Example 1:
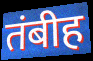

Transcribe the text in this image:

तंबीह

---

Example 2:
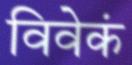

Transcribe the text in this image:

विवेकं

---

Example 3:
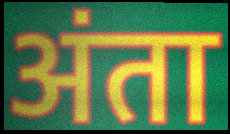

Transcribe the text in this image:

अंता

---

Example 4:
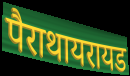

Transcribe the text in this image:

पैराथायरायड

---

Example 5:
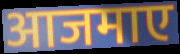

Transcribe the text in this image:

आजमाए